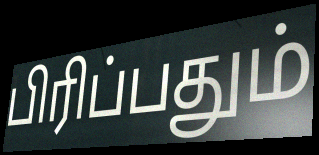
பிரிப்பதும்